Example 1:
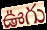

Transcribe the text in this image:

ఊగు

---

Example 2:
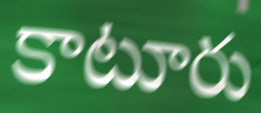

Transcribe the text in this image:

కాటూరు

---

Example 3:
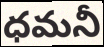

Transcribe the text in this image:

ధమనీ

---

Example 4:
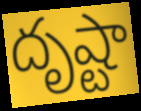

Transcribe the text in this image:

దృష్టా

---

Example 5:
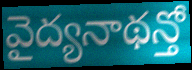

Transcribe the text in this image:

వైద్యనాథన్తో